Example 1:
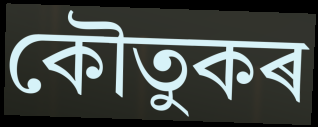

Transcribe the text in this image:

কৌতুকৰ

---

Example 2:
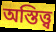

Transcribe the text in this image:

অস্তিত্ত্ব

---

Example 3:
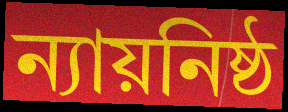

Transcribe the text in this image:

ন্যায়নিষ্ঠ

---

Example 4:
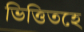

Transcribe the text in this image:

ভিত্তিতহে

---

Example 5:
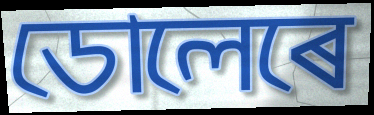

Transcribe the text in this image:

ডোলেৰে